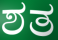
ಶತ